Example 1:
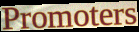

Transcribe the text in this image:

Promoters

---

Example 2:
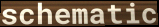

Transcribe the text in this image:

schematic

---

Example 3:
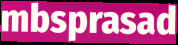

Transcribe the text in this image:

mbsprasad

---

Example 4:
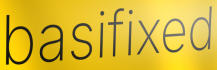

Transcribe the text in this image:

basifixed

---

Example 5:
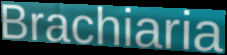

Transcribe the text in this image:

Brachiaria